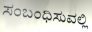
ಸಂಬಂಧಿಸುವಲ್ಲಿ